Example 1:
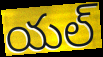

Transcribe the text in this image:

యల్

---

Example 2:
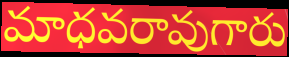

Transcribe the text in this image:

మాధవరావుగారు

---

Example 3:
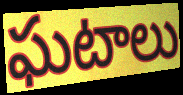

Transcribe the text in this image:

ఘటాలు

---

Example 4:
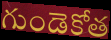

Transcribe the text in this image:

గుండెకోత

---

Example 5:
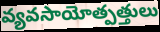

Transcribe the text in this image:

వ్యవసాయోత్పత్తులు